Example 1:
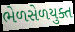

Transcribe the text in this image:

ભેળસેળયુક્ત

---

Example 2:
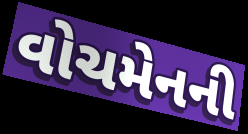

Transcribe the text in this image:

વોચમેનની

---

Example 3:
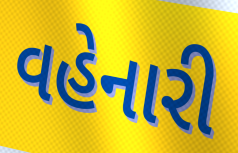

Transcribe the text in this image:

વહેનારી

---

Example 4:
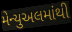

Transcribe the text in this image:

મેન્યુઅલમાંથી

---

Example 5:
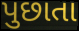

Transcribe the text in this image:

પુછાતા